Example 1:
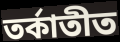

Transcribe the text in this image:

তর্কাতীত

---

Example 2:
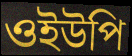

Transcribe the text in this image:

ওইউপি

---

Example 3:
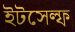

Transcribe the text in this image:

ইটসেল্ফ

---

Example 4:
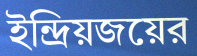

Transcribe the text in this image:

ইন্দ্রিয়জয়ের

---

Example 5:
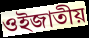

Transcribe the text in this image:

ওইজাতীয়